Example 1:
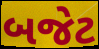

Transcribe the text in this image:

બજેટ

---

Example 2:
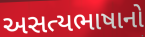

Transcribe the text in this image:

અસત્યભાષાનો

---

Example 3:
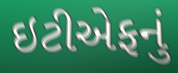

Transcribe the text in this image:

ઇટીએફનું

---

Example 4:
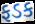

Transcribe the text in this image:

ફડક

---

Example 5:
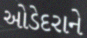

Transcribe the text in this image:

ઓડેદરાને